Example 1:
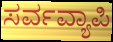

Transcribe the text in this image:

ಸರ್ವವ್ಯಾಪಿ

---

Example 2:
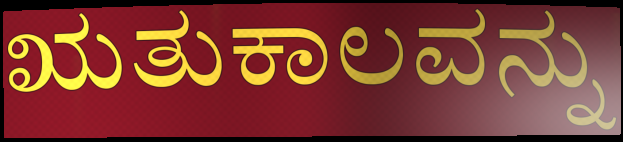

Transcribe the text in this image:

ಋತುಕಾಲವನ್ನು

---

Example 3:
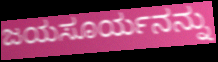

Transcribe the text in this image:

ಜಯಸೂರ್ಯನನ್ನು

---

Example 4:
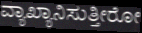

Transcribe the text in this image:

ವ್ಯಾಖ್ಯಾನಿಸುತ್ತೀರೋ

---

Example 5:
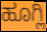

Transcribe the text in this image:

ಹೂಗ್ಲಿ